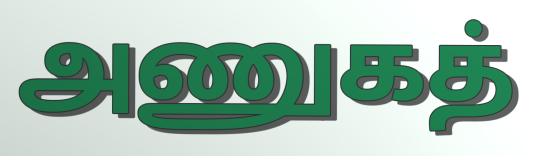
அணுகத்